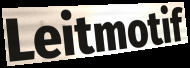
Leitmotif